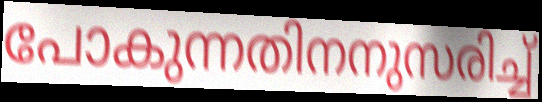
പോകുന്നതിനനുസരിച്ച്